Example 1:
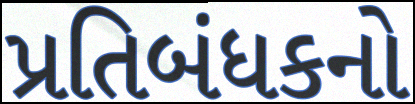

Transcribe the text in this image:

પ્રતિબંધકનો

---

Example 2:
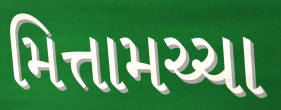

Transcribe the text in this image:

મિત્તામચ્ચા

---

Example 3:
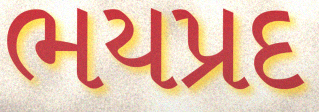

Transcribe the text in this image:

ભયપ્રદ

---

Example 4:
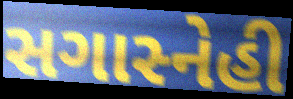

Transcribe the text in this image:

સગાસ્નેહી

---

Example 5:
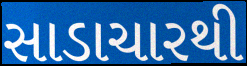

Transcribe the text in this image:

સાડાચારથી